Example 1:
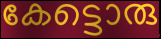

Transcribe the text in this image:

കേട്ടൊരു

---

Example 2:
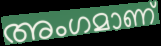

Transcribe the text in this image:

അംഗമാണ്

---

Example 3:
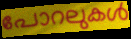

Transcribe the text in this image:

പോറലുകൾ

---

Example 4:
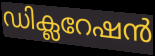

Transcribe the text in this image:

ഡിക്ലറേഷൻ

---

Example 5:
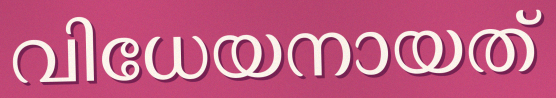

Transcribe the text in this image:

വിധേയനായത്